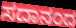
ಸದಾನಂದ